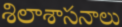
శిలాశాసనాలు